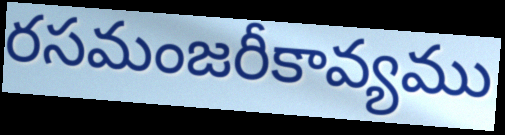
రసమంజరీకావ్యము